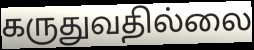
கருதுவதில்லை